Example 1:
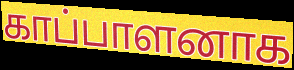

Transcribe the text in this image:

காப்பாளனாக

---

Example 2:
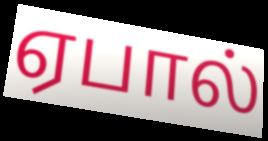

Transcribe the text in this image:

ஏபால்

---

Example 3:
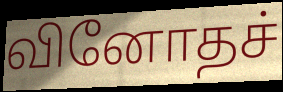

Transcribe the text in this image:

வினோதச்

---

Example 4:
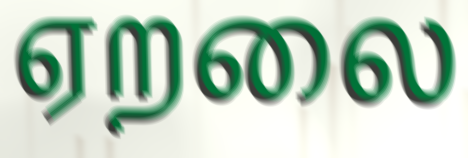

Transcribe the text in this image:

ஏறலை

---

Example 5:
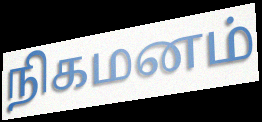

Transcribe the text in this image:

நிகமனம்